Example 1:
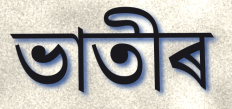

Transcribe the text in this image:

ভাতীৰ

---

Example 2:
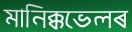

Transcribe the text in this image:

মানিক্কভেলৰ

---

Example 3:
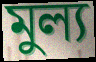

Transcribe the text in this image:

মুল্য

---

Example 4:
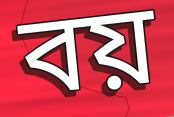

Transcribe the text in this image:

বয়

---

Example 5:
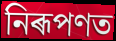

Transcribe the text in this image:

নিৰূপণত